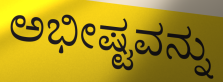
ಅಭೀಷ್ಟವನ್ನು